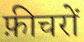
फ़ीचरों